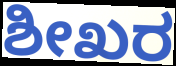
ಶೀಖರ